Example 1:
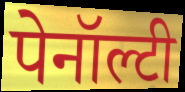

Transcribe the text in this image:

पेनॉल्टी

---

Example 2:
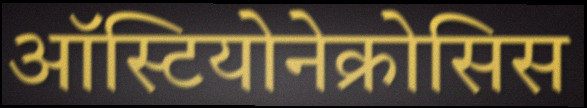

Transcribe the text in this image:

ऑस्टियोनेक्रोसिस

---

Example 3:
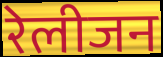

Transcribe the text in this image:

रेलीजन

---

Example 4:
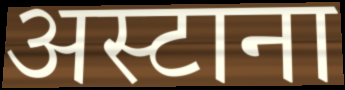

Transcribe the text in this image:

अस्टाना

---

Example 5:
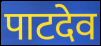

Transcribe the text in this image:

पाटदेव